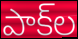
పాక్‌ల